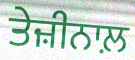
ਤੇਜ਼ੀਨਾਲ਼